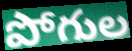
పోగుల